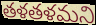
తళతళమని